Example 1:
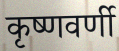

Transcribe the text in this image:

कृष्णवर्णी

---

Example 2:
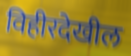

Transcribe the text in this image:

विहीरदेखील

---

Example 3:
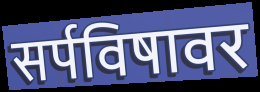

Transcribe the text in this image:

सर्पविषावर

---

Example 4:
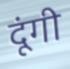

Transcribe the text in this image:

दूंगी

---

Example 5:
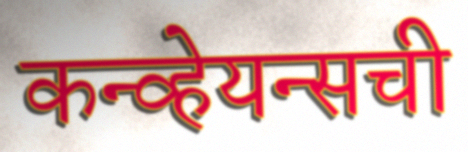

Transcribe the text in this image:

कन्व्हेयन्सची